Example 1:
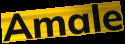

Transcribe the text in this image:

Amale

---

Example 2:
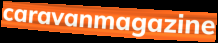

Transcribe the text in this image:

caravanmagazine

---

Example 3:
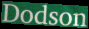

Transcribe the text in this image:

Dodson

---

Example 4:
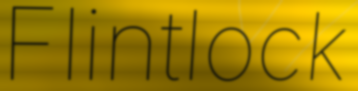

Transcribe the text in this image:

Flintlock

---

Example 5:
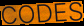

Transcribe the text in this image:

CODES